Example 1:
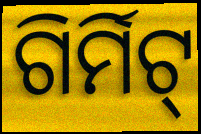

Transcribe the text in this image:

ଗିର୍ମିଟ୍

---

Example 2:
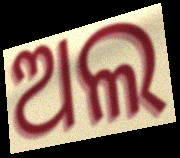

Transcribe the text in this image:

ଅଲ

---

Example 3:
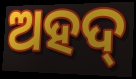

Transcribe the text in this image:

ଅହଦ୍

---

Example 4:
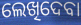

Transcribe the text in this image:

ଲେଖିଦେବା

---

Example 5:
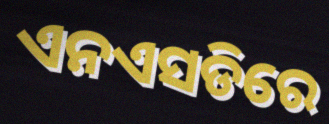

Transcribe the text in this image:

ଏନଏସଡିରେ